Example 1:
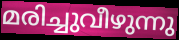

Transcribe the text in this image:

മരിച്ചുവീഴുന്നു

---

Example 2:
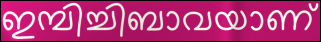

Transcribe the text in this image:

ഇമ്പിച്ചിബാവയാണ്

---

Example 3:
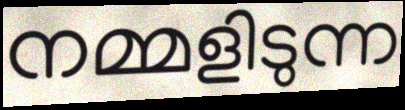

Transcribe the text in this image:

നമ്മളിടുന്ന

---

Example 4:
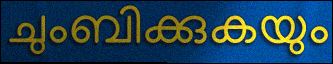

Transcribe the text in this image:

ചുംബിക്കുകയും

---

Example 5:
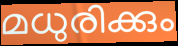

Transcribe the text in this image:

മധുരിക്കും